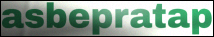
asbepratap